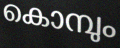
കൊമ്പും